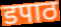
डपाठ